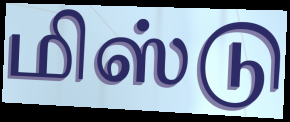
மிஸ்டு